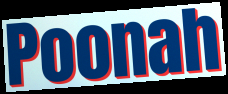
Poonah